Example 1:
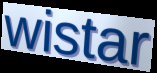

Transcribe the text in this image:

wistar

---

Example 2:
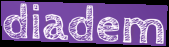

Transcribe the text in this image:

diadem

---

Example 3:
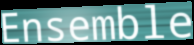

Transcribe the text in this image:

Ensemble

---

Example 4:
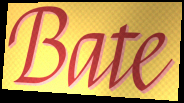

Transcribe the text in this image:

Bate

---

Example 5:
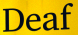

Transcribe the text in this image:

Deaf